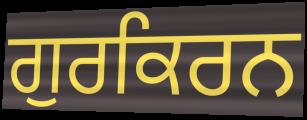
ਗੁਰਕਿਰਨ